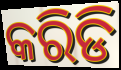
କରିଡି